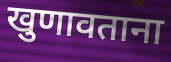
खुणावताना